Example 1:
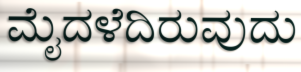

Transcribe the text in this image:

ಮೈದಳೆದಿರುವುದು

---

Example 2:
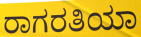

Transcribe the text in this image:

ರಾಗರತಿಯಾ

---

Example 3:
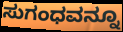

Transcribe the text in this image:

ಸುಗಂಧವನ್ನೂ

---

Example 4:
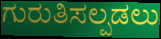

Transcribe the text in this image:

ಗುರುತಿಸಲ್ಪಡಲು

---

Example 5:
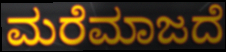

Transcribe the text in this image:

ಮರೆಮಾಜದೆ